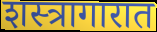
शस्त्रागारात